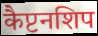
कैप्टनशिप